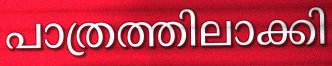
പാത്രത്തിലാക്കി